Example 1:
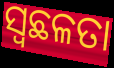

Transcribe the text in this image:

ସ୍ଵଛଳତା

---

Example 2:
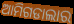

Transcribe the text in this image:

ଆମିଗଡାଲାର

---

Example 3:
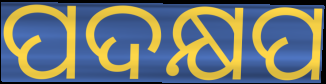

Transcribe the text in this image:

ପଦକ୍ଷପ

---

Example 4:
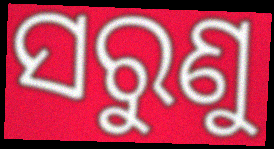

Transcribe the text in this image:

ସରୁଣୁ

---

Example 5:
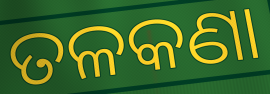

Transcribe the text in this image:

ତଳକଣା